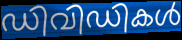
ഡിവിഡികൾ